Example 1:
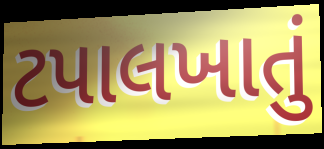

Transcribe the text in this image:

ટપાલખાતું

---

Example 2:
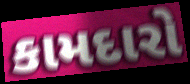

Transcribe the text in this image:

કામદારો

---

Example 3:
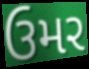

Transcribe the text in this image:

ઉમર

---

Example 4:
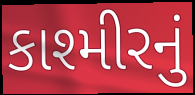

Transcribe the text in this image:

કાશ્મીરનું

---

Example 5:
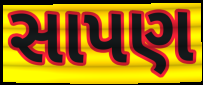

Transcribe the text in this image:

સાપણ